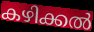
കഴിക്കൽ